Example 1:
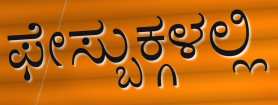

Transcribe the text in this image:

ಫೇಸ್ಬುಕ್ಗಳಲ್ಲಿ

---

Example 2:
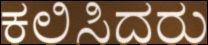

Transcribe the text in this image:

ಕಲಿಸಿದರು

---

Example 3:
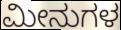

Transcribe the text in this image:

ಮೀನುಗಳ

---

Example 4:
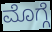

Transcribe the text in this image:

ಮೊಗ್ಗೆ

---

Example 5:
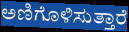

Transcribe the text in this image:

ಅಣಿಗೊಳಿಸುತ್ತಾರೆ